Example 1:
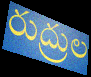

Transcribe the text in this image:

రుద్రుల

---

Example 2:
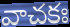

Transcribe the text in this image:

వాచకః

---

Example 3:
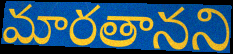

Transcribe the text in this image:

మారతానని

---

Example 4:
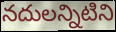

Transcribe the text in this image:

నదులన్నిటిని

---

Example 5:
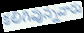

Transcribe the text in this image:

కలిగివున్నవారు